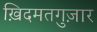
ख़िदमतगुज़ार